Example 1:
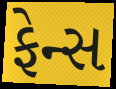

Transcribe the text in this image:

ફેન્સ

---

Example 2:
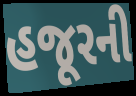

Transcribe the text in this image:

હજૂરની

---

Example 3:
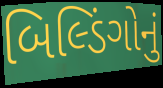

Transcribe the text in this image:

બિલ્ડિંગોનું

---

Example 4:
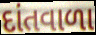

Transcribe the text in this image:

દાંતવાળા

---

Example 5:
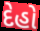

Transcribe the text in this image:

દેહો